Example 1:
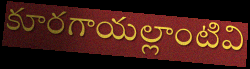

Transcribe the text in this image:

కూరగాయల్లాంటివి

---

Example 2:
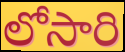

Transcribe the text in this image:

లోసారి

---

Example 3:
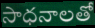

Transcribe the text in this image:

సాధనాలతో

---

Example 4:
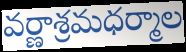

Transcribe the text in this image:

వర్ణాశ్రమధర్మాల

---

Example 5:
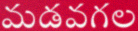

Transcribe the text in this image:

మడవగల